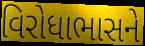
વિરોધાભાસને